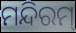
ମନ୍ଦିରମ୍